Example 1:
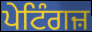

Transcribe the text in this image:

ਪੇਟਿੰਗਜ਼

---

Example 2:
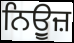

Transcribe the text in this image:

ਨਿਉੂਜ਼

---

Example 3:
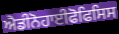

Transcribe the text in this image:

ਐਡੀਨੋਹਾਈਫੋਫਿਸਿਸ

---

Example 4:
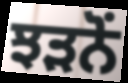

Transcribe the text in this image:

ਝੜਨੋਂ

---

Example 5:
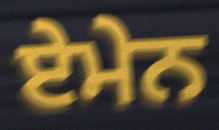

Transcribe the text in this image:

ਏਮੇਨ